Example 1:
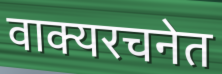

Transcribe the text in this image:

वाक्यरचनेत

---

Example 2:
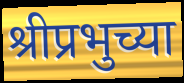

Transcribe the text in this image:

श्रीप्रभुच्या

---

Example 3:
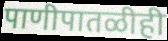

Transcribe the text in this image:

पाणीपातळीही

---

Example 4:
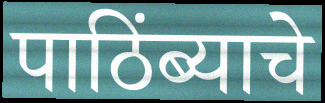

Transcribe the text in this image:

पाठिंब्याचे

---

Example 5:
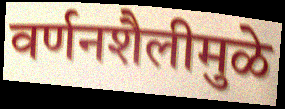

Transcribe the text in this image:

वर्णनशैलीमुळे